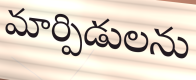
మార్పిడులను